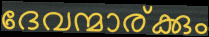
ദേവന്മാര്ക്കും